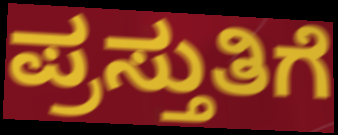
ಪ್ರಸ್ತುತಿಗೆ